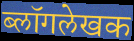
ब्लॉगलेखक